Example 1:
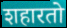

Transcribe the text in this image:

शहारतो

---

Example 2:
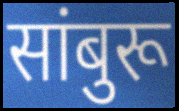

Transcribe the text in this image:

सांबुरू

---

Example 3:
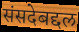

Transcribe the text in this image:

संसदेबद्दल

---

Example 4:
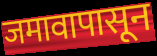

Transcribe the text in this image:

जमावापासून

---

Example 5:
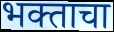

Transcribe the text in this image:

भक्ताचा